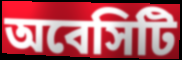
অবেসিটি